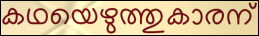
കഥയെഴുത്തുകാരന്